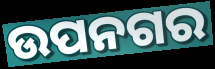
ଉପନଗର